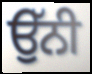
ਉੱਨੀ